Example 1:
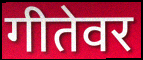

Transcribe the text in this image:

गीतेवर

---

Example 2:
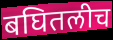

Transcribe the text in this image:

बघितलीच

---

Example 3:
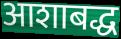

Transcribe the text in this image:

आशाबद्ध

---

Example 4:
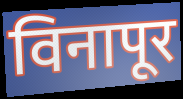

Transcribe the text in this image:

विनापूर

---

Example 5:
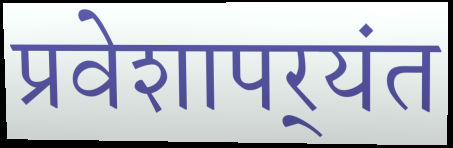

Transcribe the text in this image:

प्रवेशापर्यंत